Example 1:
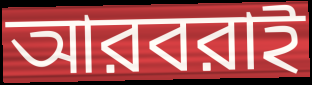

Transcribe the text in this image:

আরবরাই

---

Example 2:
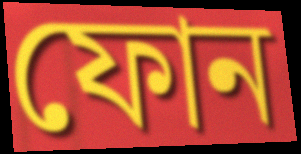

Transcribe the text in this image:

ফোন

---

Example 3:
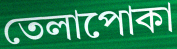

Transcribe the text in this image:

তেলাপোকা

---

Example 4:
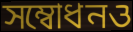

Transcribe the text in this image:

সম্বোধনও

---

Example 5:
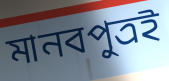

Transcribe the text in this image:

মানবপুত্রই